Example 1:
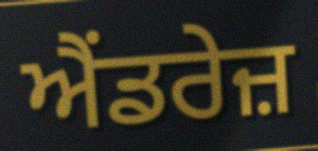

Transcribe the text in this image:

ਐਂਡਰੇਜ਼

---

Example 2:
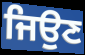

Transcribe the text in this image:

ਜਿਉਣ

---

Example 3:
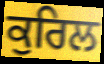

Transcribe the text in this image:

ਕੁਰਿਲ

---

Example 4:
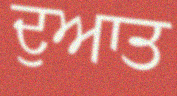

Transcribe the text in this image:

ਦੁਆਤ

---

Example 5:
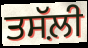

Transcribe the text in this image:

ਤਸੱਲ਼ੀ